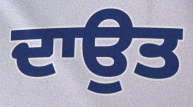
ਦਾਉਤ